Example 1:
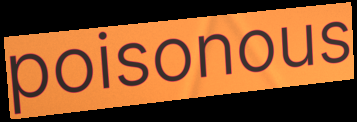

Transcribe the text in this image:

poisonous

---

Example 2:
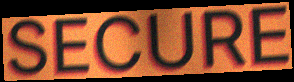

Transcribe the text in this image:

SECURE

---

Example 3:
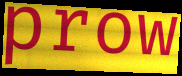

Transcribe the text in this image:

prow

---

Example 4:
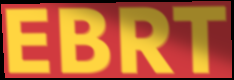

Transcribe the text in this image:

EBRT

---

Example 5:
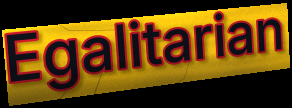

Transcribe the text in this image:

Egalitarian